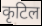
कृटिल